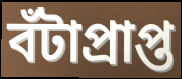
বঁটাপ্ৰাপ্ত